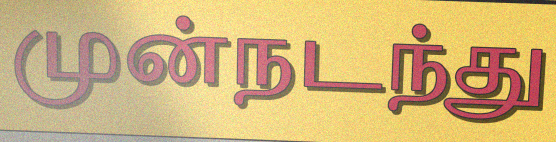
முன்நடந்து